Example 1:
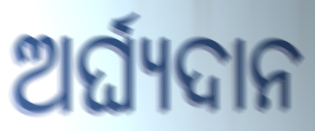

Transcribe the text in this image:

ଅର୍ଘ୍ୟଦାନ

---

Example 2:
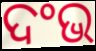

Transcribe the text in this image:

ଦଂଭ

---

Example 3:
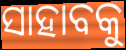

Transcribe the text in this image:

ସାହାବକୁ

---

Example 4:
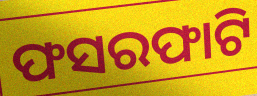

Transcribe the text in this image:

ଫସରଫାଟି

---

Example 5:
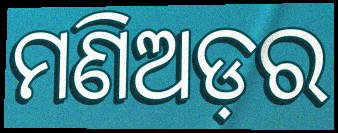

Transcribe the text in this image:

ମଣିଅଡ଼ର